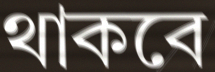
থাকবে